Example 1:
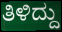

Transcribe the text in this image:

ತಿಳಿದ್ದು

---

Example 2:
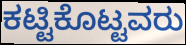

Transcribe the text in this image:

ಕಟ್ಟಿಕೊಟ್ಟವರು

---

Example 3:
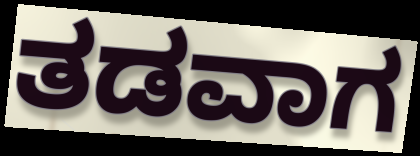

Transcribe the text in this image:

ತಡವಾಗ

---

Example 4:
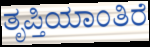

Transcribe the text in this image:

ತೃಪ್ತಿಯಾಂತಿರೆ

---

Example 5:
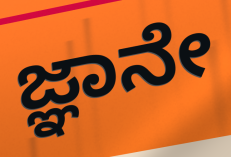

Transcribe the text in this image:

ಜ್ಞಾನೇ